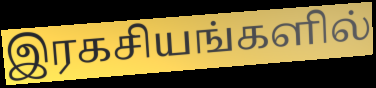
இரகசியங்களில்